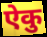
ऐकु